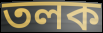
তলক